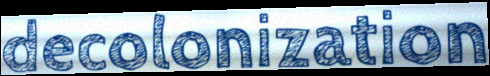
decolonization